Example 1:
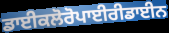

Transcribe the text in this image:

ਡਾਈਕਲੋਰੋਪਾਈਰੀਡਾਈਨ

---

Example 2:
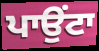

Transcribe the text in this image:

ਪਾਉੰਟਾ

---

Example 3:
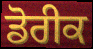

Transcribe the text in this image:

ਡੋਰੀਕ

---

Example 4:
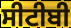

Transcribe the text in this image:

ਸੀਟੀਬੀ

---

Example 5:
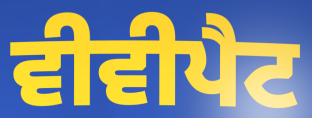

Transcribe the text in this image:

ਵੀਵੀਪੈਟ